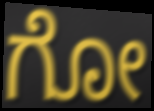
ಗೋ